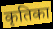
कृतिका